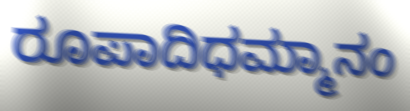
ರೂಪಾದಿಧಮ್ಮಾನಂ